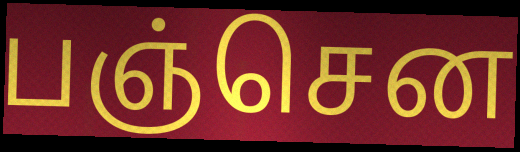
பஞ்சென